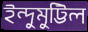
ইন্দুমুট্টিল